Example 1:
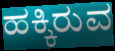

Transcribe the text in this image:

ಹಕ್ಕಿರುವ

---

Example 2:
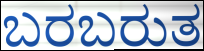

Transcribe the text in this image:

ಬರಬರುತ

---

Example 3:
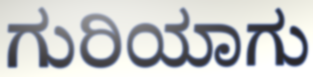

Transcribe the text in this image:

ಗುರಿಯಾಗು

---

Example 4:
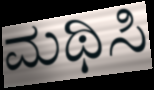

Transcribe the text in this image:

ಮಥಿಸಿ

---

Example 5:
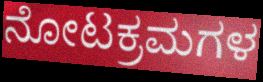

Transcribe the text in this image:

ನೋಟಕ್ರಮಗಳ